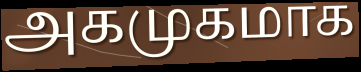
அகமுகமாக